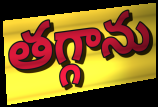
తగ్గాను